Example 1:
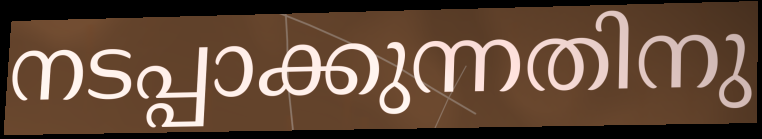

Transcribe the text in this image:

നടപ്പാക്കുന്നതിനു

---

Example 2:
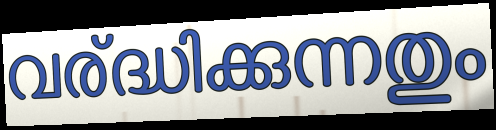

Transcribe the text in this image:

വര്ദ്ധിക്കുന്നതും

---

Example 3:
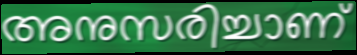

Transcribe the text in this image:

അനുസരിച്ചാണ്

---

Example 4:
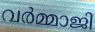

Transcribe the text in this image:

വർമ്മാജി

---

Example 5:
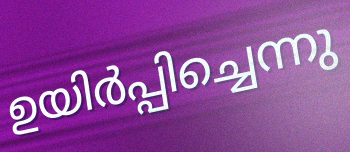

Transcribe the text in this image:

ഉയിർപ്പിച്ചെന്നു